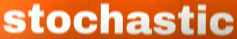
stochastic